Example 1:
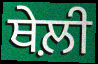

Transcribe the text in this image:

ਥੇਲ਼ੀ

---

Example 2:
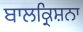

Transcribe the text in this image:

ਬਾਲਕ੍ਰਿਸ਼ਨਾ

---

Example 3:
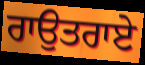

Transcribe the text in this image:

ਰਾਉਤਰਾਏ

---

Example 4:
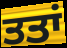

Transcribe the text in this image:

ਤਤਾਂ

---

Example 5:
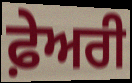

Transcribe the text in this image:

ਫ਼ੇਅਰੀ